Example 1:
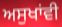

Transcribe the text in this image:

ਅਸੁਖਾਂਵੀ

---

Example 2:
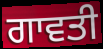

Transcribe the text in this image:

ਗਾਵਤੀ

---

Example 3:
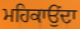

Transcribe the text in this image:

ਮਹਿਕਾਉਂਦਾ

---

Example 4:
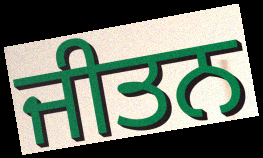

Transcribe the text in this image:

ਜੀਤਨ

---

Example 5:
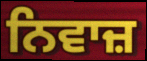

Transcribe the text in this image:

ਨਿਵਾਜ਼